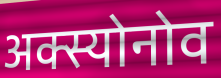
अक्स्योनोव